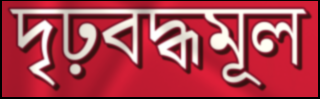
দৃঢ়বদ্ধমূল